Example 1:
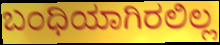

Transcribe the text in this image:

ಬಂಧಿಯಾಗಿರಲಿಲ್ಲ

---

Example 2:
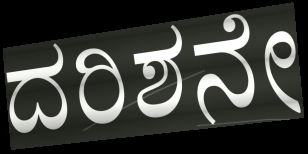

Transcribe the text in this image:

ದರಿಶನೇ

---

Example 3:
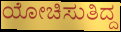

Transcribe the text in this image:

ಯೋಚಿಸುತಿದ್ದ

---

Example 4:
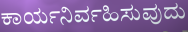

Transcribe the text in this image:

ಕಾರ್ಯನಿರ್ವಹಿಸುವುದು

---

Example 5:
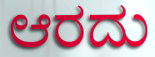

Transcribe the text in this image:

ಆರದು